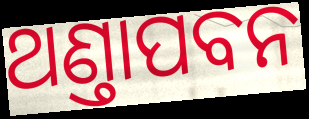
ଥଣ୍ତାପବନ